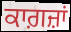
ਕਾਗ਼ਜ਼ਾਂ